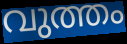
വുത്തം